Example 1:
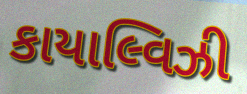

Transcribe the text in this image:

કાયાલ્વિઝી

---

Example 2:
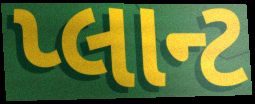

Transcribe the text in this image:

પ્લાન્ટ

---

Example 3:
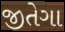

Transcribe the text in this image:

જીતેગા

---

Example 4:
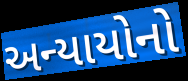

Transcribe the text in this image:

અન્યાયોનો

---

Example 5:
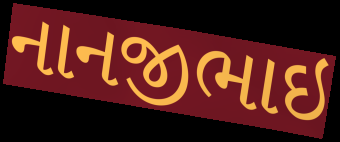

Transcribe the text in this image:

નાનજીભાઇ